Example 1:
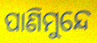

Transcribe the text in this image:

ପାଣିମୁନ୍ଦେ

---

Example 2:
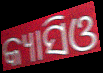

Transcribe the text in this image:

କ୍ୟାସିଓ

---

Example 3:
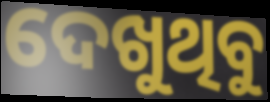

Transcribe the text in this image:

ଦେଖୁଥିବୁ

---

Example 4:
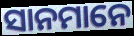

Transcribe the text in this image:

ସାନମାନେ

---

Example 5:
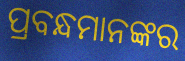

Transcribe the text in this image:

ପ୍ରବନ୍ଧମାନଙ୍କର